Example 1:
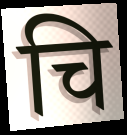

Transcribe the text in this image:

चि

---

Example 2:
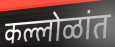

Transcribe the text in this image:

कल्लोळांत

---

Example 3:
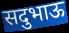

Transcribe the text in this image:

सदुभाऊ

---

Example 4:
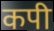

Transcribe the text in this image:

कपी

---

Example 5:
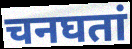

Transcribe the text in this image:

चनघतां